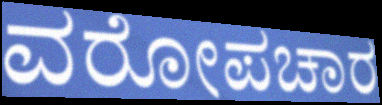
ವರೋಪಚಾರ